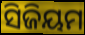
ସିଜିୟମ